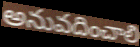
అనువదించాలి